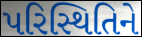
પરિસ્થિતિને